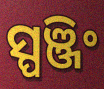
ସ୍ପଞ୍ଜିଂ